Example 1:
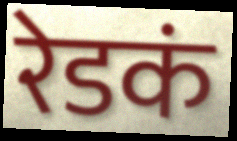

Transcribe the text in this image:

रेडकं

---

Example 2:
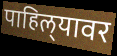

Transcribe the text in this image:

पाहिल्यावर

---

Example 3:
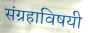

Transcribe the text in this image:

संग्रहाविषयी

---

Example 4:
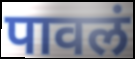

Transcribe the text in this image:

पावलं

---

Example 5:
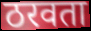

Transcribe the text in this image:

ठरवता